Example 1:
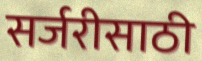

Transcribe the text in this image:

सर्जरीसाठी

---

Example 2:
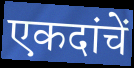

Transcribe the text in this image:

एकदांचें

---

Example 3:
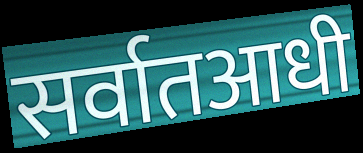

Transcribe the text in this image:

सर्वातआधी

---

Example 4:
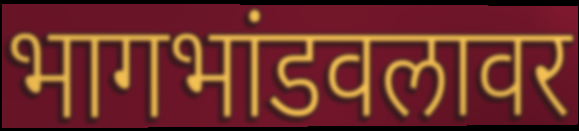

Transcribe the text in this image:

भागभांडवलावर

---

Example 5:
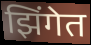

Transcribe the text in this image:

झिंगेत